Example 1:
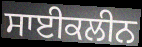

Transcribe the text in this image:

ਸਾਈਕਲੀਨ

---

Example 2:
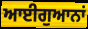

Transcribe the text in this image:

ਆਈਗੁਆਨਾਂ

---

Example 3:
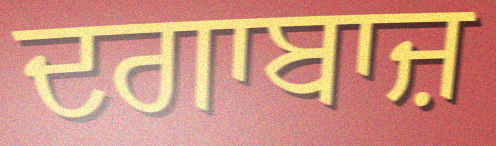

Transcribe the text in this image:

ਦਗਾਬਾਜ਼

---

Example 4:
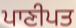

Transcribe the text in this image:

ਪਾਣੀਪਤ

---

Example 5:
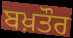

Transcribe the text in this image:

ਬਖ਼ਤੌਰ